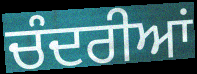
ਚੰਦਰੀਆਂ